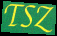
TSZ